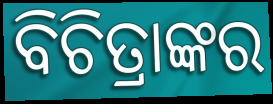
ବିଚିତ୍ରାଙ୍କର